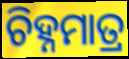
ଚିହ୍ନମାତ୍ର